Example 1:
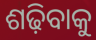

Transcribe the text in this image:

ଶଢ଼ିବାକୁ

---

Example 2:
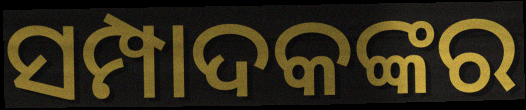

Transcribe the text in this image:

ସମ୍ପାଦକଙ୍କର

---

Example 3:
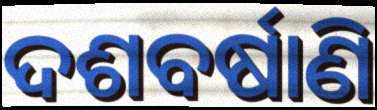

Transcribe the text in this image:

ଦଶବର୍ଷାଣି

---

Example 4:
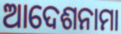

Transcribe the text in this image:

ଆଦେଶନାମା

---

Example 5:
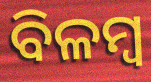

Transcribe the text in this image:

ବିଳମ୍ଵ